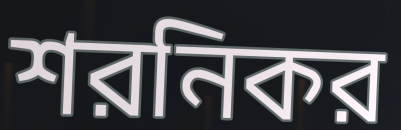
শরনিকর